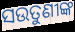
ସଉତୁଣୀଙ୍କ